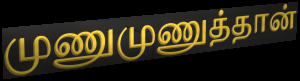
முணுமுணுத்தான்